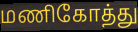
மணிகோத்து